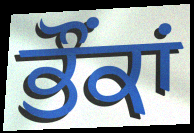
ਭੌਂਕਾਂ